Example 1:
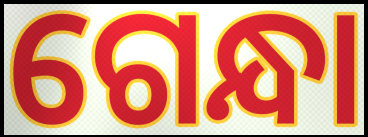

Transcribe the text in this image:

ଗେନ୍ଧା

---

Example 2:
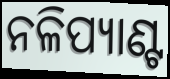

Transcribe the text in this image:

ନଳିପ୍ୟାଣ୍ଟ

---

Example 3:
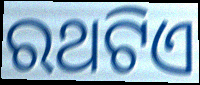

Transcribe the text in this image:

ରଥଟିଏ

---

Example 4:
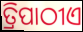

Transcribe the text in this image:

ତ୍ରିପାଠୀଏ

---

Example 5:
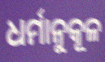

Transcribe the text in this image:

ଧର୍ମାନୁକୂଳ